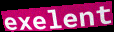
exelent